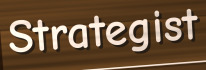
Strategist